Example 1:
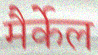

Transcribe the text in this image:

मैर्केल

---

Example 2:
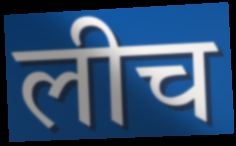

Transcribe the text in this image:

लीच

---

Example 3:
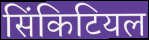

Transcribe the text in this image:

सिंकिटियल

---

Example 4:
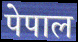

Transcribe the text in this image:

पेपाल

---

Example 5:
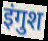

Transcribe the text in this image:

इंगुश